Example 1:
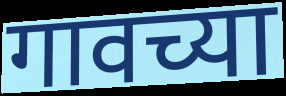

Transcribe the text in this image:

गावच्या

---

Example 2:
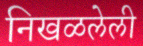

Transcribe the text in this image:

निखळलेली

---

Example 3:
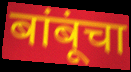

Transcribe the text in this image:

बांबूंचा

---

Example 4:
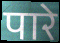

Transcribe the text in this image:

पारे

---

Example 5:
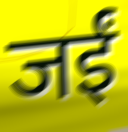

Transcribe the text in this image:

जईं